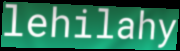
lehilahy